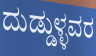
ದುಡ್ಡುಳ್ಳವರ